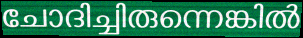
ചോദിച്ചിരുന്നെങ്കിൽ